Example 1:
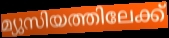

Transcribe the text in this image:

മ്യുസിയത്തിലേക്ക്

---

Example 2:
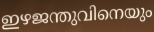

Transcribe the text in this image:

ഇഴജന്തുവിനെയും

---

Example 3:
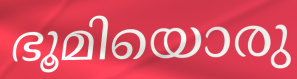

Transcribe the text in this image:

ഭൂമിയൊരു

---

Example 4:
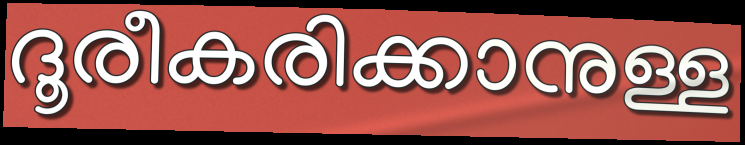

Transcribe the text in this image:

ദൂരീകരിക്കാനുള്ള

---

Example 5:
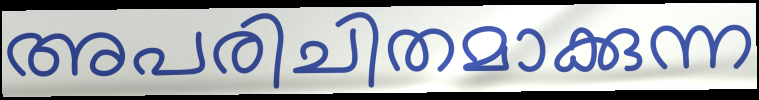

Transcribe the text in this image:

അപരിചിതമാക്കുന്ന